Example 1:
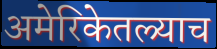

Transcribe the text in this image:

अमेरिकेतल्याच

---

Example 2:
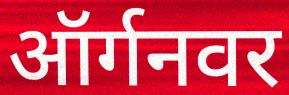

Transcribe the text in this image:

ऑर्गनवर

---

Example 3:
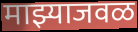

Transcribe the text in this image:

माझ्याजवळ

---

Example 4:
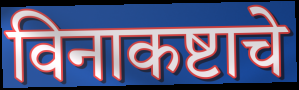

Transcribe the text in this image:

विनाकष्टाचे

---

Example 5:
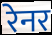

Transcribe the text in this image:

रेनर